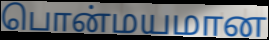
பொன்மயமான